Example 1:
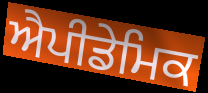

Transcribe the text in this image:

ਐਪੀਡੇਮਿਕ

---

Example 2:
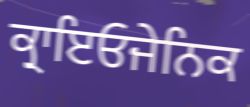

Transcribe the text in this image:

ਕ੍ਰਾਇਓਜੇਨਿਕ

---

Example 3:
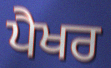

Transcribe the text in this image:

ਪੈਖਰ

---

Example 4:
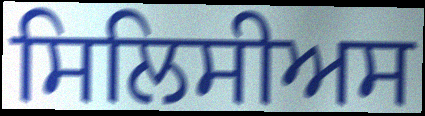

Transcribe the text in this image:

ਸਿਲਿਸੀਅਸ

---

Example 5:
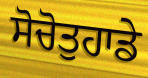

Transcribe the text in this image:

ਸੋਚੋਤੁਹਾਡੇ